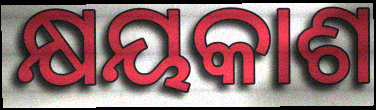
କ୍ଷୟକାଶ